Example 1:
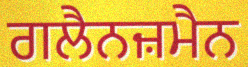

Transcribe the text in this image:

ਗਲੈਨਜ਼ਮੈਨ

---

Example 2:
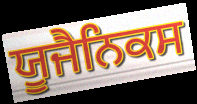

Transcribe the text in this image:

ਯੂਜੈਨਿਕਸ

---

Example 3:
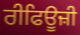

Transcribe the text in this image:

ਰੀਫਿਊਜ਼ੀ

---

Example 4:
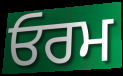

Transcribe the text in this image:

ਓਰਮ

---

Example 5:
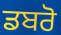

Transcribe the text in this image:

ਡਬਰੋ